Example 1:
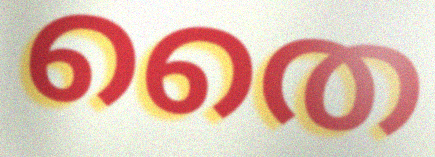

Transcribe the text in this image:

തൈ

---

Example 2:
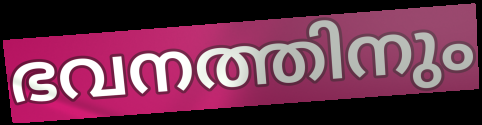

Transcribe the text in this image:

ഭവനത്തിനും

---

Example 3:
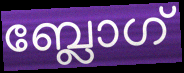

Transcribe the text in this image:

ബ്ലോഗ്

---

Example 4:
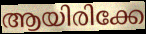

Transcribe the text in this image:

ആയിരിക്കേ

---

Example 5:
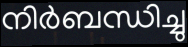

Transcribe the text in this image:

നിർബന്ധിച്ചു